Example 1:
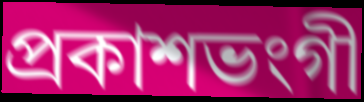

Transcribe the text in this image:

প্ৰকাশভংগী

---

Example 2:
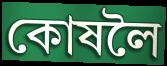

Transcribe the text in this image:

কোষলৈ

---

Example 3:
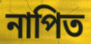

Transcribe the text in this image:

নাপিত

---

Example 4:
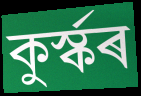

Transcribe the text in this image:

কুৰ্স্কৰ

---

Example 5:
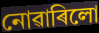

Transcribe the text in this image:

নোৱাৰিলো